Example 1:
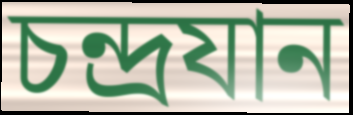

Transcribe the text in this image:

চন্দ্ৰযান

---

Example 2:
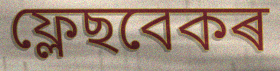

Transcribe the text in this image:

ফ্লেছবেকৰ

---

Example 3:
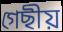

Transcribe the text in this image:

গেছীয়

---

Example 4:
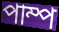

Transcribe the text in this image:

পাম্প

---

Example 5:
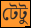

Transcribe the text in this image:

টেটু